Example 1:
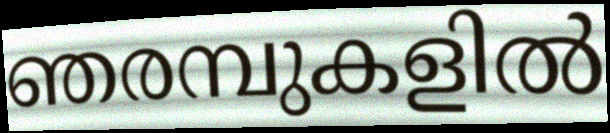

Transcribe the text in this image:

ഞരമ്പുകളിൽ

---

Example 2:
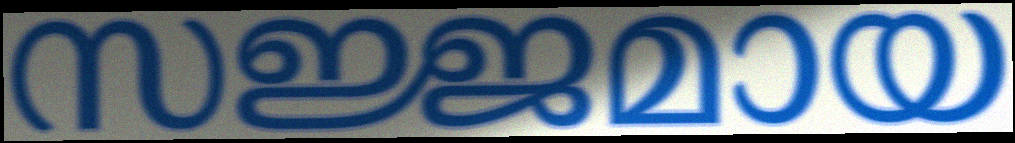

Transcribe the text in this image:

സജ്ജമായ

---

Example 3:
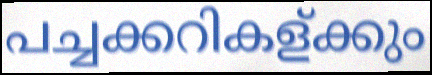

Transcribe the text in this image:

പച്ചക്കറികള്ക്കും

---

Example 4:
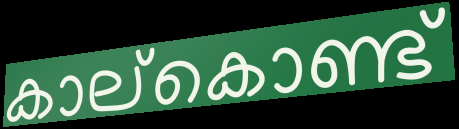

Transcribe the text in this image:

കാല്കൊണ്ട്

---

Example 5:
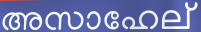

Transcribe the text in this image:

അസാഹേല്